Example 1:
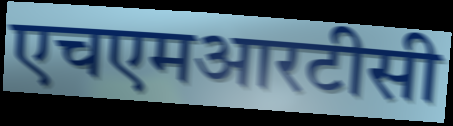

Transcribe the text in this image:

एचएमआरटीसी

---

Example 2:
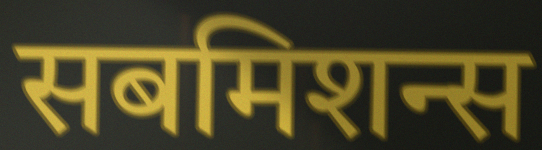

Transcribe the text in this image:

सबमिशन्स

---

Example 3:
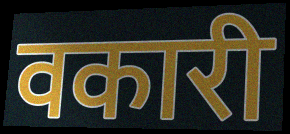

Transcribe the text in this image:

वकारी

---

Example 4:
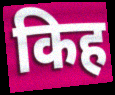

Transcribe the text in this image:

किह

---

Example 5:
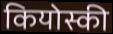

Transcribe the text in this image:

कियोस्की